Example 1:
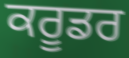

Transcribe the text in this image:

ਕਰੂਡਰ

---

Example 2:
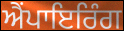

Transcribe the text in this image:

ਐਂਪਾਇਰਿੰਗ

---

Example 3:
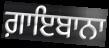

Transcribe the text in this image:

ਗ਼ਾਇਬਾਨਾ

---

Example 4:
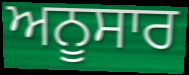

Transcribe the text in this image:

ਅਨੂਸਾਰ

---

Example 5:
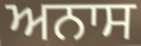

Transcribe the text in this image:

ਅਨਾਸ